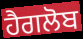
ਹੈਗਲੋਬ